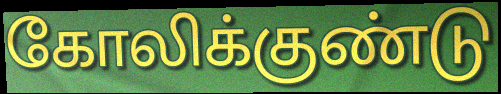
கோலிக்குண்டு